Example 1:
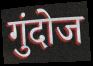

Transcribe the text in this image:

गुंदोज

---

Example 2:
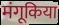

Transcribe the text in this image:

मंगूकिया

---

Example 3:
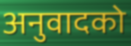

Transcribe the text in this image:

अनुवादको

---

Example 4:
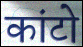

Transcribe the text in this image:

कांटो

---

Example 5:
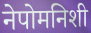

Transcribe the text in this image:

नेपोमनिशी